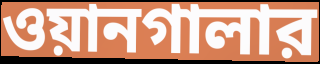
ওয়ানগালার